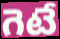
గెటే